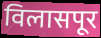
विलासपूर